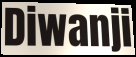
Diwanji